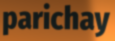
parichay